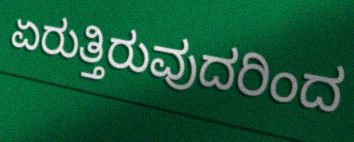
ಏರುತ್ತಿರುವುದರಿಂದ